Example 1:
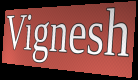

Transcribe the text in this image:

Vignesh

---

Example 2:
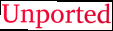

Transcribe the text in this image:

Unported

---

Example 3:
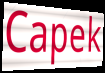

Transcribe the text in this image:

Capek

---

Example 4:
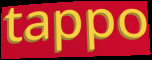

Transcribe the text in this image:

tappo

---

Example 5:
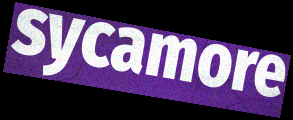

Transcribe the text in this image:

sycamore